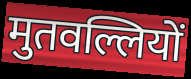
मुतवल्लियों